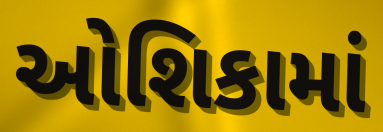
ઓશિકામાં